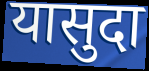
यासुदा